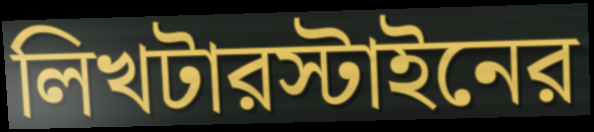
লিখটারস্টাইনের